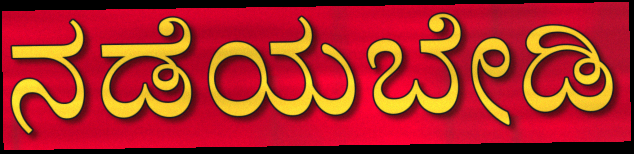
ನಡೆಯಬೇಡಿ